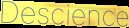
Descience